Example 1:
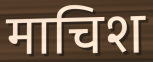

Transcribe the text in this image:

माचिश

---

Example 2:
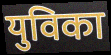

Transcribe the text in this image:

युविका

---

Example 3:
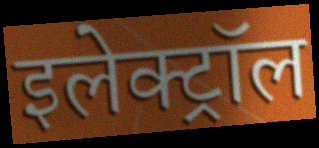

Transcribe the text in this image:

इलेक्ट्रॉल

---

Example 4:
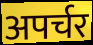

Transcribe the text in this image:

अपर्चर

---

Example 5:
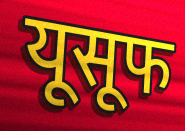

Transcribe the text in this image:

यूसूफ